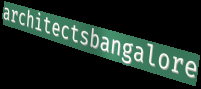
architectsbangalore